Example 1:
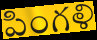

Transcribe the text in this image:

పింగళి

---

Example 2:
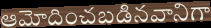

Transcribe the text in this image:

ఆమోదించబడినవానిగా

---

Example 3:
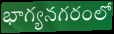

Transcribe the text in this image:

భాగ్యనగరంలో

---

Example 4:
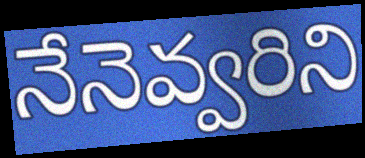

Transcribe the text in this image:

నేనెవ్వరిని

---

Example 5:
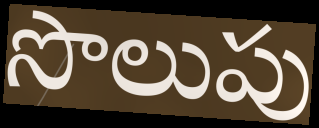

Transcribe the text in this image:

సొలుపు